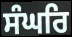
ਸੰਘਰਿ